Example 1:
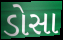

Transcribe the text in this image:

ડોસા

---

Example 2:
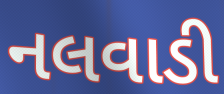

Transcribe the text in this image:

નલવાડી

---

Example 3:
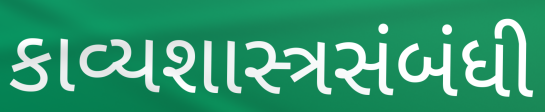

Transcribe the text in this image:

કાવ્યશાસ્ત્રસંબંધી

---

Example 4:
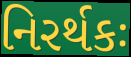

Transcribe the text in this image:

નિરર્થકઃ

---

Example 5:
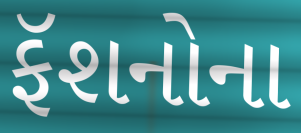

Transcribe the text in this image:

ફૅશનોના